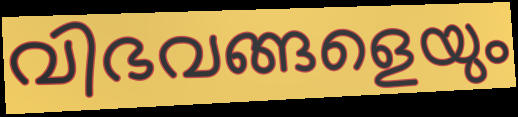
വിഭവങ്ങളെയും